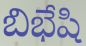
బిభేషి